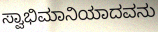
ಸ್ವಾಭಿಮಾನಿಯಾದವನು